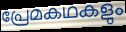
പ്രേമകഥകളും